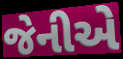
જેનીએ